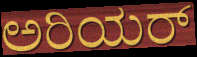
ಅರಿಯರ್